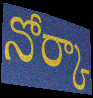
నోర్కా